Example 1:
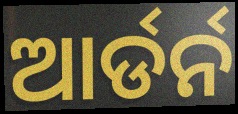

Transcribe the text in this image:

ଆର୍ଡର୍ନ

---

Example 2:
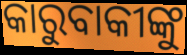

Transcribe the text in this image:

କାରୁବାକୀଙ୍କୁ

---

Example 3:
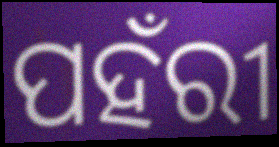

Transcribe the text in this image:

ପହଁରୀ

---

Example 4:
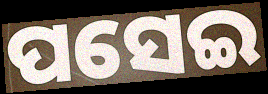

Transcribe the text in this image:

ପସେଇ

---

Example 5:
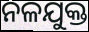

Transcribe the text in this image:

ନଳଯୁକ୍ତ